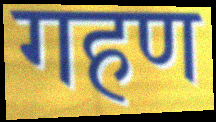
गहण